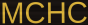
MCHC